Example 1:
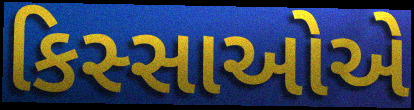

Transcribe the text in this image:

કિસ્સાઓએ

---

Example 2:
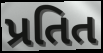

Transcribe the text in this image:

પ્રતિત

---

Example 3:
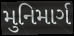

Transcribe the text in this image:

મુનિમાર્ગ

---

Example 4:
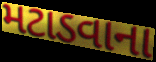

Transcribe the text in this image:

મટાડવાના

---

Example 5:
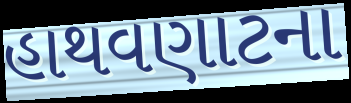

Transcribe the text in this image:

હાથવણાટના